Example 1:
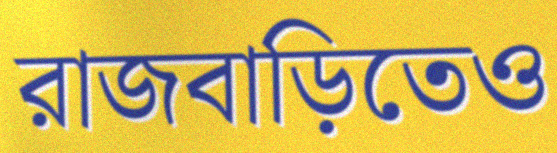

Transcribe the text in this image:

রাজবাড়িতেও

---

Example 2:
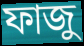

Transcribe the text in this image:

ফাজু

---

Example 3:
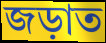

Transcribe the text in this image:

জড়াত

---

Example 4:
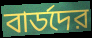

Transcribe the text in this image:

বার্ডদের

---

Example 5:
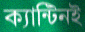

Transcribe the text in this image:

ক্যান্টিনই